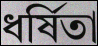
ধৰ্ষিতা